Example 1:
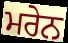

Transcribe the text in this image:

ਮਰੇਨ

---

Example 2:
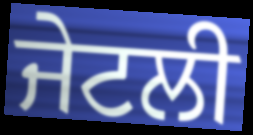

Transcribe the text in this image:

ਜੇਟਲੀ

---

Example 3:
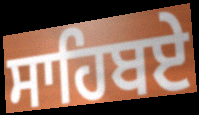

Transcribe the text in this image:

ਸਾਹਿਬਏ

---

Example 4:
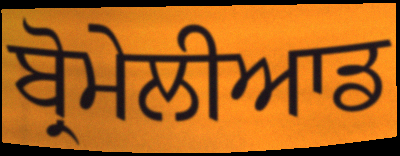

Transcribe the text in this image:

ਬ੍ਰੋਮੇਲੀਆਡ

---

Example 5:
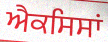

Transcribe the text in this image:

ਐਕਸਿਸਾਂ